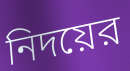
নিদয়ের